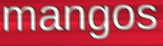
mangos